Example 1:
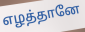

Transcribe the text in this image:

எழத்தானே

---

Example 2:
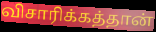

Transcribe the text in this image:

விசாரிக்கத்தான்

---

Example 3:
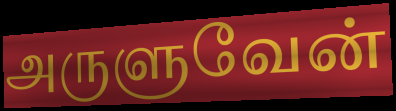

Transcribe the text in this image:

அருளுவேன்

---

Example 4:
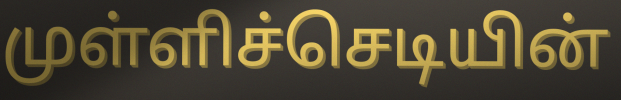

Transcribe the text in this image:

முள்ளிச்செடியின்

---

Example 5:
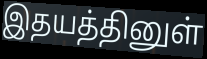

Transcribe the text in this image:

இதயத்தினுள்